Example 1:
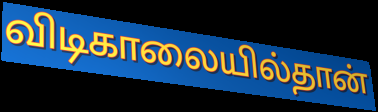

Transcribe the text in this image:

விடிகாலையில்தான்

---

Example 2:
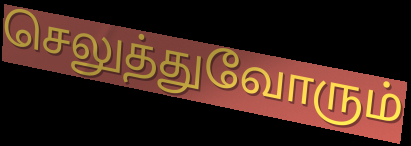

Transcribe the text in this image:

செலுத்துவோரும்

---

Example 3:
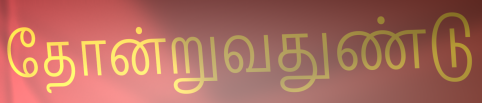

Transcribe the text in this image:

தோன்றுவதுண்டு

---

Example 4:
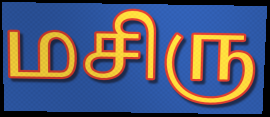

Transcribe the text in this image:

மசிரு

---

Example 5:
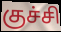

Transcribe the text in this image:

குச்சி